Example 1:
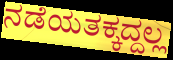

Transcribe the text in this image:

ನಡೆಯತಕ್ಕದ್ದಲ್ಲ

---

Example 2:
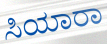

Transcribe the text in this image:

ಸಿಯಾರಾ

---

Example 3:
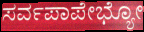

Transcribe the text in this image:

ಸರ್ವಪಾಪೇಭ್ಯೋ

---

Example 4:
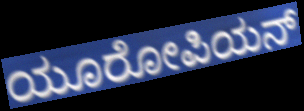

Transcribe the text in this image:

ಯೂರೋಪಿಯನ್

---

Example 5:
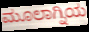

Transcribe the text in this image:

ಮೂಲಾಗ್ನಿಯ